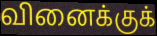
வினைக்குக்